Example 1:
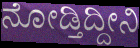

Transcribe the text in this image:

ನೋಡ್ತಿದ್ದೀನಿ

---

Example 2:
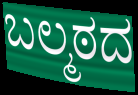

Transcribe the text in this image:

ಬಲ್ಮಠದ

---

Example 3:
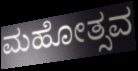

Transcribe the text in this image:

ಮಹೋತ್ಸವ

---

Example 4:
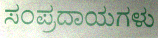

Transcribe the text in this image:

ಸಂಪ್ರದಾಯಗಳು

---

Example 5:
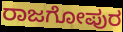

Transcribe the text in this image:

ರಾಜಗೋಪುರ